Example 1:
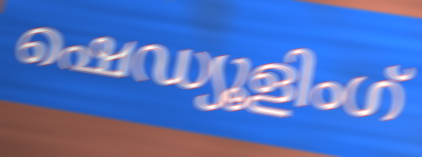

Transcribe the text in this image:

ഷെഡ്യൂളിംഗ്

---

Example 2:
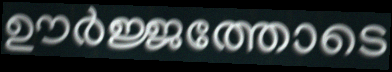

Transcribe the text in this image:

ഊർജ്ജത്തോടെ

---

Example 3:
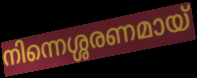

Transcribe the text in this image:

നിന്നെശ്ശരണമായ്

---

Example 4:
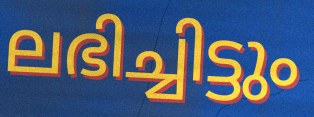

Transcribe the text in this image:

ലഭിച്ചിട്ടും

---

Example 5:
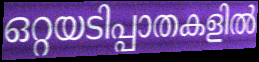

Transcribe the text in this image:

ഒറ്റയടിപ്പാതകളിൽ